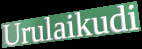
Urulaikudi